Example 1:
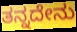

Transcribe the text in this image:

ತನ್ನದೇನು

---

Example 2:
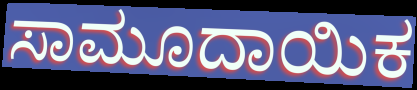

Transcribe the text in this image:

ಸಾಮೂದಾಯಿಕ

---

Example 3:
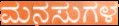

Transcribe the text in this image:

ಮನಸುಗಳ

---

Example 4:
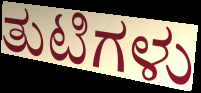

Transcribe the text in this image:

ತುಟಿಗಳು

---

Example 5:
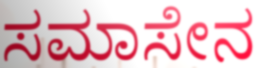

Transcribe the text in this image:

ಸಮಾಸೇನ